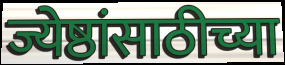
ज्येष्ठांसाठीच्या